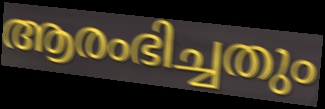
ആരംഭിച്ചതും